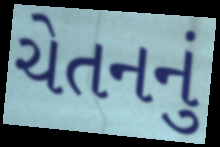
ચેતનનું